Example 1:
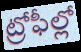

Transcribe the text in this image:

ట్రోఫీల్లో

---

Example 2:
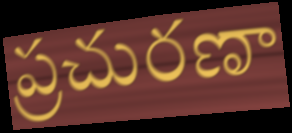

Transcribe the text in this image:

ప్రచురణా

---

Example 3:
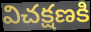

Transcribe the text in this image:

విచక్షణకి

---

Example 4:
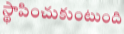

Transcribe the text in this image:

స్థాపించుకుంటుంది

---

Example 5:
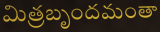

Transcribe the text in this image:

మిత్రబృందమంతా